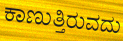
ಕಾಣುತ್ತಿರುವದು